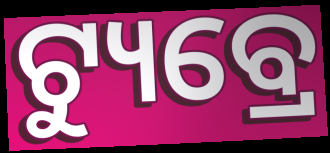
ଟ୍ୟୁବ୍ରେ